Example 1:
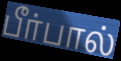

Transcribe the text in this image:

பீர்பால்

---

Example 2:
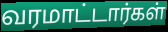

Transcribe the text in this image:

வரமாட்டார்கள்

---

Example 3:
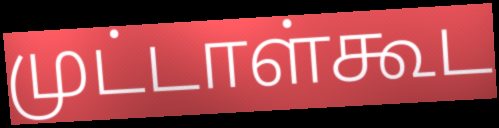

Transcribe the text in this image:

முட்டாள்கூட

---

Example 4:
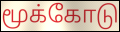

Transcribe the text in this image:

மூக்கோடு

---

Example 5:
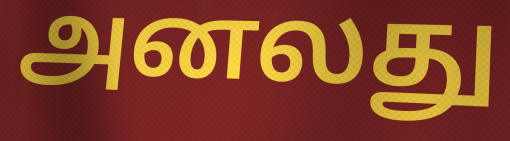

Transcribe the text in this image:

அனலது